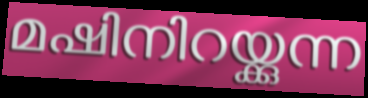
മഷിനിറയ്ക്കുന്ന